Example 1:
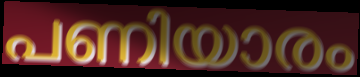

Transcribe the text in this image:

പണിയാരം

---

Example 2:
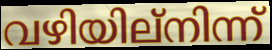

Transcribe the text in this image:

വഴിയില്നിന്ന്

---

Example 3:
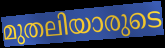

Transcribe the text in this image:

മുതലിയാരുടെ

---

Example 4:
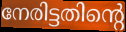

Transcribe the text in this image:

നേരിട്ടതിന്റെ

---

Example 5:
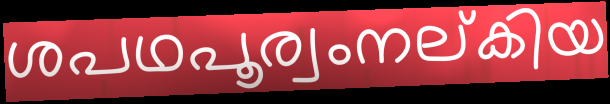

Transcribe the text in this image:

ശപഥപൂര്വംനല്കിയ